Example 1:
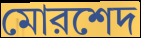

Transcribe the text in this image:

মোরশেদ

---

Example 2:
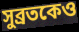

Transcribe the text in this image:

সুব্রতকেও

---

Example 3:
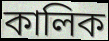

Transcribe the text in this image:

কালিক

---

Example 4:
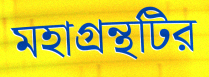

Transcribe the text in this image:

মহাগ্রন্থটির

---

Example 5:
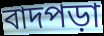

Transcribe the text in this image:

বাদপড়া